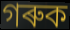
গৰুক